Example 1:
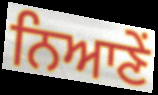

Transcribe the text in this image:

ਨਿਆਣੇਂ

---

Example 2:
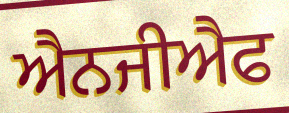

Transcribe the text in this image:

ਐਨਜੀਐਫ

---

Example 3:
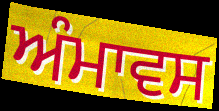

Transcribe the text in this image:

ਅੰਮਾਵਸ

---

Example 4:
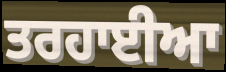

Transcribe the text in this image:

ਤਰਹਾਈਆ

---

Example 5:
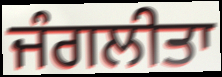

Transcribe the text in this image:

ਜੰਗਲੀਤਾ